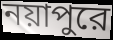
নয়াপুরে